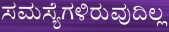
ಸಮಸ್ಯೆಗಳಿರುವುದಿಲ್ಲ